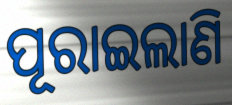
ପୂରାଇଲାଣି